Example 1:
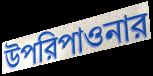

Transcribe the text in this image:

উপরিপাওনার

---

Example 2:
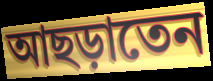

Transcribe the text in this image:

আছড়াতেন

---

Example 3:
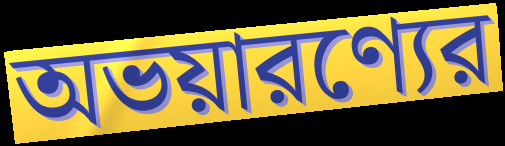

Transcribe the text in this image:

অভয়ারণ্যের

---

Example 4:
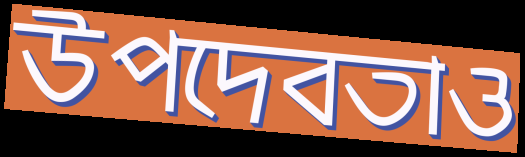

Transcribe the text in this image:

উপদেবতাও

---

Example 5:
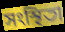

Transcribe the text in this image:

সংস্থিতা